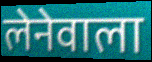
लेनेवाला